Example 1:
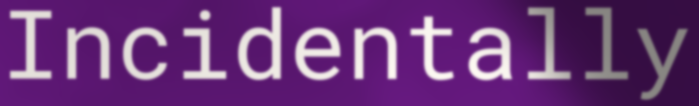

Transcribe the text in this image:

Incidentally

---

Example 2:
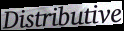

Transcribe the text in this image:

Distributive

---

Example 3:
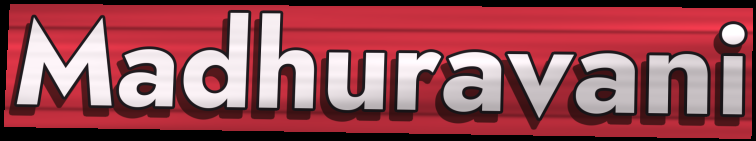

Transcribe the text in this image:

Madhuravani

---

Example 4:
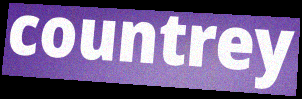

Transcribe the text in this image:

countrey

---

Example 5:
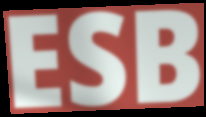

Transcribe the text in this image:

ESB